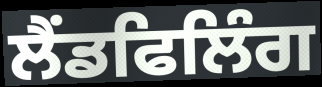
ਲੈਂਡਫਿਲਿੰਗ